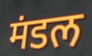
मंडल